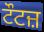
ਟੌਟਜ਼